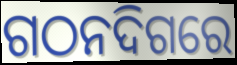
ଗଠନଦିଗରେ